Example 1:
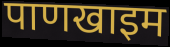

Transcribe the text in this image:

पाणखाइम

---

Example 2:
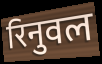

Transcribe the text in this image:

रिनुवल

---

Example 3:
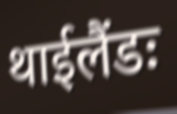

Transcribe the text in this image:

थाईलैंडः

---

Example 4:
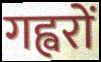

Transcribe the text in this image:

गह्वरों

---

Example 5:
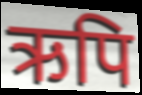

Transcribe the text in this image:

ऋपि